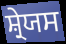
ਸ਼੍ਰੇਯਸ